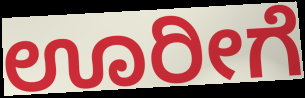
ಊರೀಗೆ